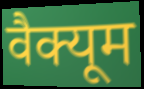
वैक्यूम